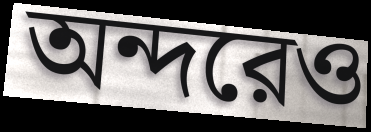
অন্দরেও